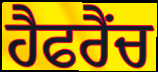
ਹੈਫਰੈਂਚ